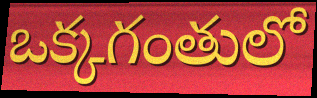
ఒక్కగంతులో